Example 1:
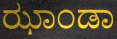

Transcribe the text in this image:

ಝಾಂಡಾ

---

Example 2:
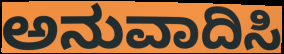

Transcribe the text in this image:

ಅನುವಾದಿಸಿ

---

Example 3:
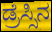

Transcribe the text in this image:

ಡ್ರೆಸ್ಸಿನ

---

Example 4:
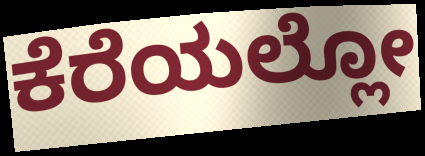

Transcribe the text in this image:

ಕೆರೆಯಲ್ಲೋ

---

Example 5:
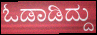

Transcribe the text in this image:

ಓಡಾಡಿದ್ದು